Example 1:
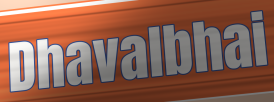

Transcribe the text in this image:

Dhavalbhai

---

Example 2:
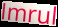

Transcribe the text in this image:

Imrul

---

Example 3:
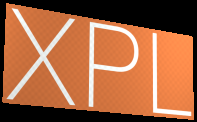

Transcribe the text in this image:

XPL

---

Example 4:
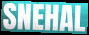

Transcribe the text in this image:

SNEHAL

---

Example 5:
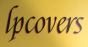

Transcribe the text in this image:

lpcovers